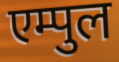
एम्पुल